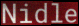
Nidle